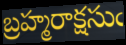
బ్రహ్మరాక్షసుఁ